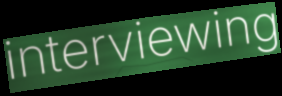
interviewing